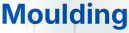
Moulding